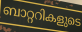
ബാറ്ററികളുടെ